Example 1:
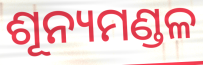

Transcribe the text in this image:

ଶୂନ୍ୟମଣ୍ଡଳ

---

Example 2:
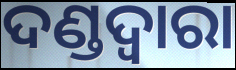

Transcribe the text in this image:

ଦଣ୍ଡଦ୍ବାରା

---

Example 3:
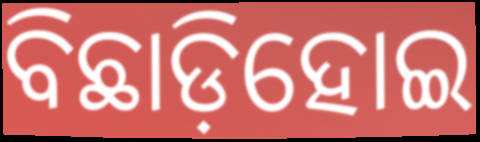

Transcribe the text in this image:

ବିଛାଡ଼ିହୋଇ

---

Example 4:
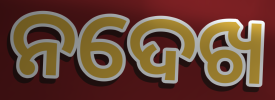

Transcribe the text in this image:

ନଦେଖ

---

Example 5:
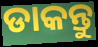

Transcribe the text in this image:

ଡାକନ୍ତୁ